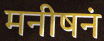
मनीषनं